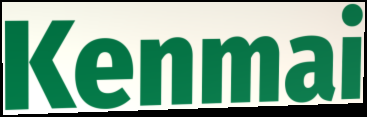
Kenmai